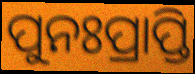
ପୁନଃପ୍ରାପ୍ତି